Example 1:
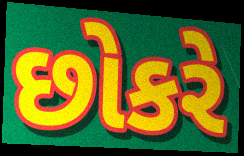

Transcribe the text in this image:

છોકરે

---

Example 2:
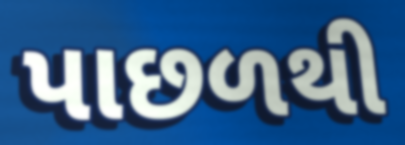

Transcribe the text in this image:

પાછળથી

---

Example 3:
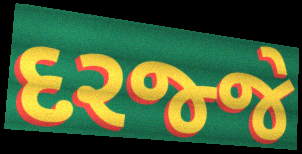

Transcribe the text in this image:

દરજ્જે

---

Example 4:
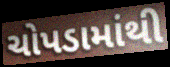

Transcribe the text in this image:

ચોપડામાંથી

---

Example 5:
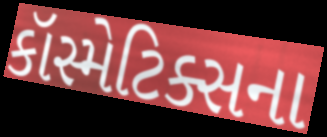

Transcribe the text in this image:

કૉસ્મેટિક્સના